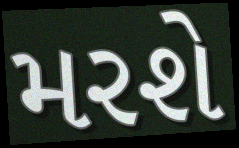
મરશે